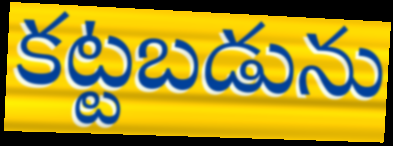
కట్టబడును